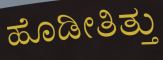
ಹೊಡೀತಿತ್ತು